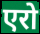
एरो